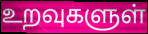
உறவுகளுள்